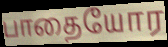
பாதையோர